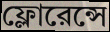
ফ্লোরেন্সে